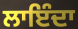
ਲਾਇੰਦਾ